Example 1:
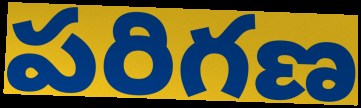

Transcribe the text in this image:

పరిగణ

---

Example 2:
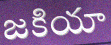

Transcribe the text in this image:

జకియా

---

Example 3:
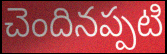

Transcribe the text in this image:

చెందినప్పటి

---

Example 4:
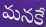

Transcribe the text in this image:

మనకే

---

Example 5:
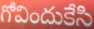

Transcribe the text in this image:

గోవిందుకేసి